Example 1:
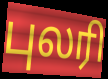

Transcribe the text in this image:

புலரி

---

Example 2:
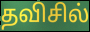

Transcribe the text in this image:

தவிசில்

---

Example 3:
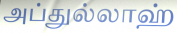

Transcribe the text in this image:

அப்துல்லாஹ்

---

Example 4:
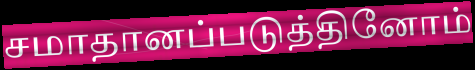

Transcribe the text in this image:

சமாதானப்படுத்தினோம்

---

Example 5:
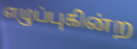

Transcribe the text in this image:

எழுப்புகின்ற